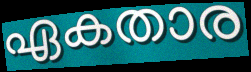
ഏകതാര